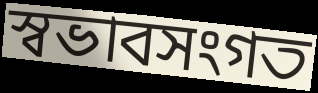
স্বভাবসংগত